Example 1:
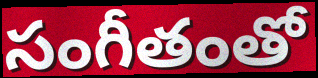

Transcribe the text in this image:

సంగీతంతో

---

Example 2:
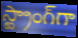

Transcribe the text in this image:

స్ట్రాంగ్‌గా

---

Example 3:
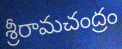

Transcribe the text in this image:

శ్రీరామచంద్రం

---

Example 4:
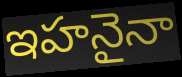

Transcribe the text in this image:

ఇహనైనా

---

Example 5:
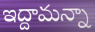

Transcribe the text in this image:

ఇద్దామన్నా